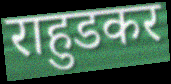
राहुडकर